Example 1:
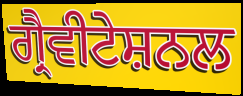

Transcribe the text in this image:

ਗ੍ਰੈਵੀਟੇਸ਼ਨਲ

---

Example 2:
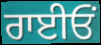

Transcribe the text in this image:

ਰਾਈਓਂ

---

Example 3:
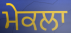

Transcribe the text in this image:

ਮੇਕਲਾ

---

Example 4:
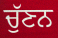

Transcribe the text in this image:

ਚੁੱਣਨ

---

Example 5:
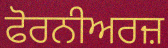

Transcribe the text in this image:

ਫੋਰਨੀਅਰਜ਼